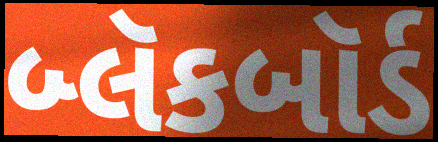
બ્લૅકબૉર્ડ